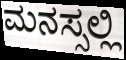
ಮನಸ್ಸಲ್ಲಿ